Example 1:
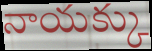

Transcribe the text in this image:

నాయక్కు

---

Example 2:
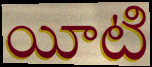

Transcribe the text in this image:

యీటి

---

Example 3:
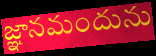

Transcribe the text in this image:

జ్ఞానమందును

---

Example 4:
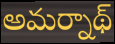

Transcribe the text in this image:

అమర్నాథ్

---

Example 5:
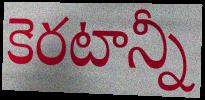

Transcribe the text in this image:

కెరటాన్నీ